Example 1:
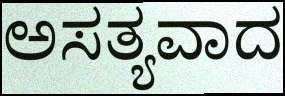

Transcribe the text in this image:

ಅಸತ್ಯವಾದ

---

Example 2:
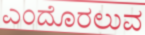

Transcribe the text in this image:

ಎಂದೊರಲುವ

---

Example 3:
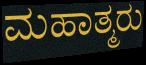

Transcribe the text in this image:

ಮಹಾತ್ಮರು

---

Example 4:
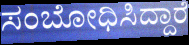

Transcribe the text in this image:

ಸಂಬೋಧಿಸಿದ್ದಾರೆ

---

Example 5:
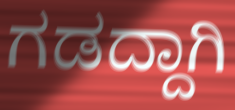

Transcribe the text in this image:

ಗಡದ್ದಾಗಿ